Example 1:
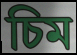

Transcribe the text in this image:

চিম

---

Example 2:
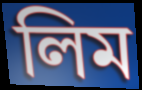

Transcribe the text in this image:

লিম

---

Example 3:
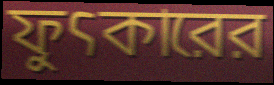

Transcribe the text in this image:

ফুৎকারের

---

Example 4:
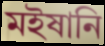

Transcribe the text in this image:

মইষানি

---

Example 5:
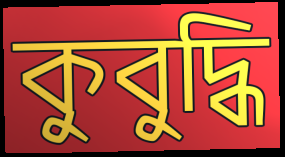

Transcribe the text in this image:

কুবুদ্ধি